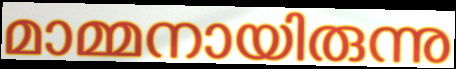
മാമ്മനായിരുന്നു